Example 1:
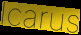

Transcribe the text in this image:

Icarus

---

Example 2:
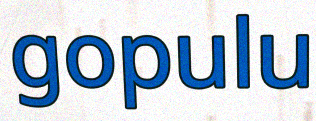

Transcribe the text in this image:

gopulu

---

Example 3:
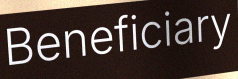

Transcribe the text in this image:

Beneficiary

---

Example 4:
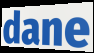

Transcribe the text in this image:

dane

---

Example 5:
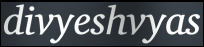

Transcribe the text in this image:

divyeshvyas